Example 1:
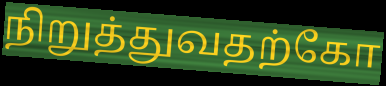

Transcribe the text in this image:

நிறுத்துவதற்கோ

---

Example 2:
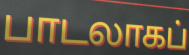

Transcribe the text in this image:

பாடலாகப்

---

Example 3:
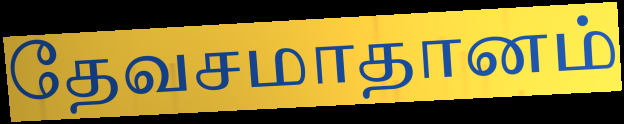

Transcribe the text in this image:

தேவசமாதானம்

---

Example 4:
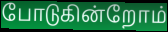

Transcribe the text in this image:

போடுகின்றோம்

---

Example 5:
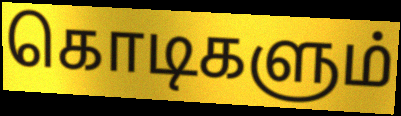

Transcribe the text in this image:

கொடிகளும்